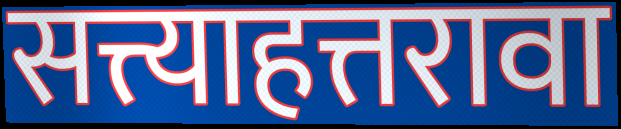
सत्त्याहत्तरावा